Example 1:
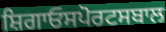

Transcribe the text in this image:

ਸ਼ਿਗਾਓਸਪੋਰਟਸਬਾਲ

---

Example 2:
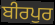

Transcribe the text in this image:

ਬੀਰਪੁਰ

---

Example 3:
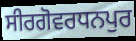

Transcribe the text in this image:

ਸੀਰਗੋਵਰਧਨਪੁਰ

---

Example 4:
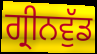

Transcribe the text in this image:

ਗ੍ਰੀਨਵੁੱਡ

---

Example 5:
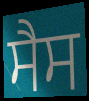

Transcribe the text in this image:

ਸੈਸ